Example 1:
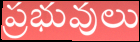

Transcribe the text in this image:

ప్రభువులు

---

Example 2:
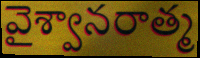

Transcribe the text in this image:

వైశ్వానరాత్మ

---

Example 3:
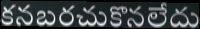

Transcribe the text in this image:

కనబరచుకొనలేదు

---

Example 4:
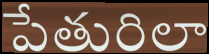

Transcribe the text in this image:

పేతురిలా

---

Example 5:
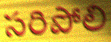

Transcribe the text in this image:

సరిపోలి